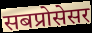
सबप्रोसेसर